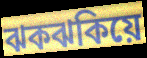
ঝকঝকিয়ে